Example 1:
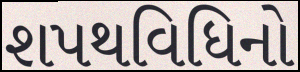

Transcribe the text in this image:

શપથવિધિનો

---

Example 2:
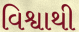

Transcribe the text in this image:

વિશ્વાથી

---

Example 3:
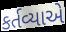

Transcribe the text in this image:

કર્તવ્યાએ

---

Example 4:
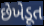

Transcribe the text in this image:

છેખેડૂત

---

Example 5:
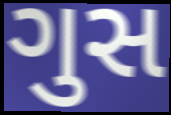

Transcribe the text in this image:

ગુસ